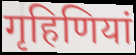
गृहिणियां